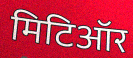
मिटिऑर